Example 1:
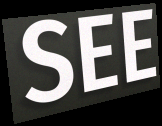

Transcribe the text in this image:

SEE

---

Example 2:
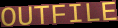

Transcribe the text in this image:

OUTFILE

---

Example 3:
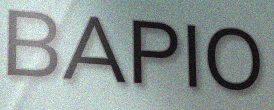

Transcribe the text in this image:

BAPIO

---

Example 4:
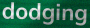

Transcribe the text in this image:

dodging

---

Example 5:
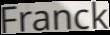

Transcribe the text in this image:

Franck